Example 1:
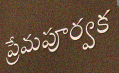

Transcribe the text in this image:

ప్రేమపూర్వక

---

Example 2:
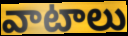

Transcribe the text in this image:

వాటాలు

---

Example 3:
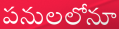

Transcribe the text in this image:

పనులలోనూ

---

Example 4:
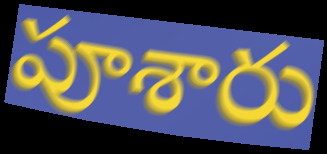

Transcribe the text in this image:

పూశారు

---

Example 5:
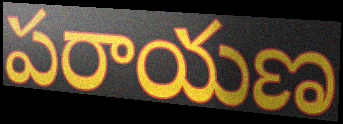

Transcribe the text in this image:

పరాయణ